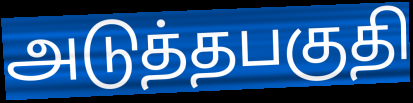
அடுத்தபகுதி